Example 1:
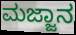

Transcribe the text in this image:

ಮಜ್ಜಾನ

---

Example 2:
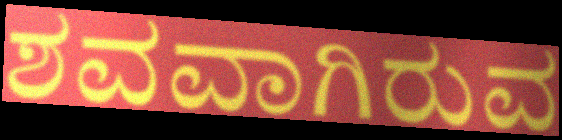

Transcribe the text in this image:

ಶವವಾಗಿರುವ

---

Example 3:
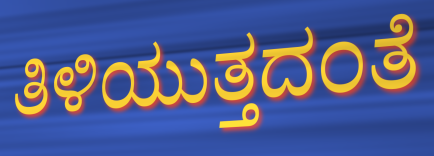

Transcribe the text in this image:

ತಿಳಿಯುತ್ತದಂತೆ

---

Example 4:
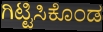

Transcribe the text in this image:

ಗಿಟ್ಟಿಸಿಕೊಂಡ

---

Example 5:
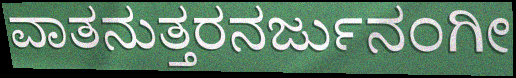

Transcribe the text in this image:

ವಾತನುತ್ತರನರ್ಜುನಂಗೀ